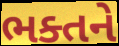
ભક્તને